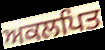
ਅਕਲਪਿਤ